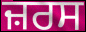
ਜ਼ਰਸ